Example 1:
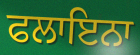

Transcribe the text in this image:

ਫਲਾਇਨਾ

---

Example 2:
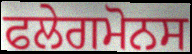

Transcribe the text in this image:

ਫਲੇਗਮੋਨਸ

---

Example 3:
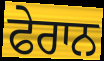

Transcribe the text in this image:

ਫੇਰਾਨ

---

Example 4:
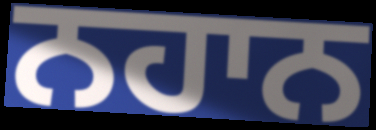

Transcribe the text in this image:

ਨਹਾਨ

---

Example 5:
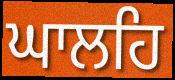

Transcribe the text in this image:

ਘਾਲਹਿ